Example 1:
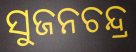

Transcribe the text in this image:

ସୁଜନଚନ୍ଦ୍ର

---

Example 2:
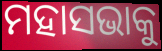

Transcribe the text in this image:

ମହାସଭାକୁ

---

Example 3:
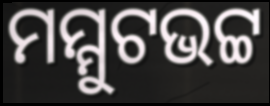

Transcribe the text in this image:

ମମ୍ମୁଟଭଟ୍ଟ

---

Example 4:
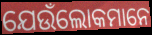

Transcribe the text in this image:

ଯେଉଁଲୋକମାନେ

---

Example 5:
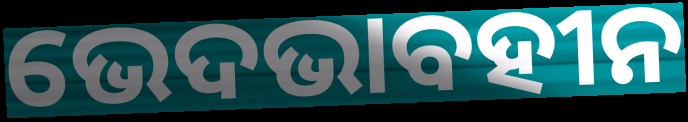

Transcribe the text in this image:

ଭେଦଭାବହୀନ